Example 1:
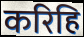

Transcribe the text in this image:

करिहि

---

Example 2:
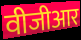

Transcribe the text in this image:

वीजीआर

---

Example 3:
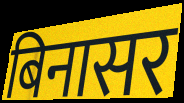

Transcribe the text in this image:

बिनासर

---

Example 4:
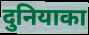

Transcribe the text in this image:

दुनियाका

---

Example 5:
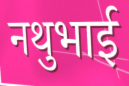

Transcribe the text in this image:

नथुभाई